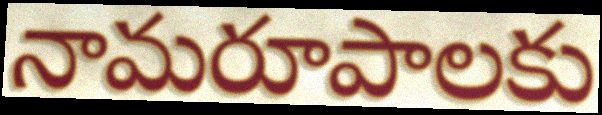
నామరూపాలకు